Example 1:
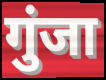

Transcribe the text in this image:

गुंजा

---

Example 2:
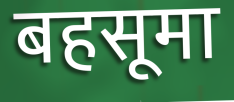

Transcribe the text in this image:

बहसूमा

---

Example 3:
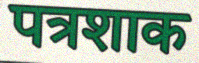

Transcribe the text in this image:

पत्रशाक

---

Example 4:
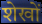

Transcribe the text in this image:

शेखों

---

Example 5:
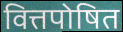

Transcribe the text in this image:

वित्तपोषित